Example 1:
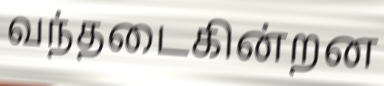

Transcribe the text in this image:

வந்தடைகின்றன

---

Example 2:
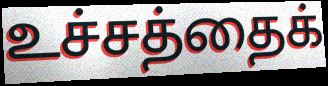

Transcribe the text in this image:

உச்சத்தைக்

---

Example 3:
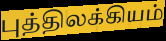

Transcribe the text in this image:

புத்திலக்கியம்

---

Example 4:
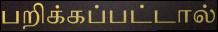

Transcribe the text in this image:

பறிக்கப்பட்டால்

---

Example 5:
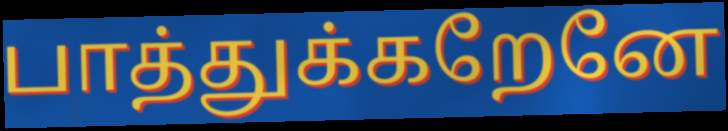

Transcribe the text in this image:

பாத்துக்கறேனே